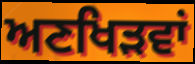
ਅਣਖਿੜਵਾਂ